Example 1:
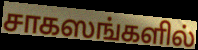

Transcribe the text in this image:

சாகஸங்களில்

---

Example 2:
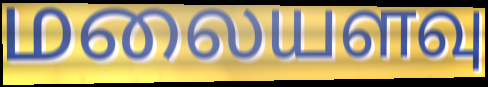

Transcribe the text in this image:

மலையளவு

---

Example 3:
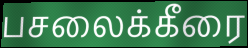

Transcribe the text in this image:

பசலைக்கீரை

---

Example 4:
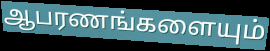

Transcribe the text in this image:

ஆபரணங்களையும்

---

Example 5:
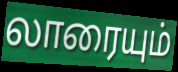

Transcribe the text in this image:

லாரையும்